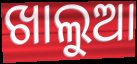
ଖାଲୁଆ